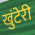
खुंटेरी